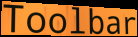
Toolbar